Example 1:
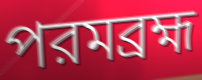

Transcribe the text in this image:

পরমব্রহ্ম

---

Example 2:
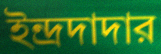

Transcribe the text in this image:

ইন্দ্রদাদার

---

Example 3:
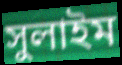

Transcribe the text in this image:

সুলাইম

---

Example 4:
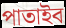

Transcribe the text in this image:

পাতাইব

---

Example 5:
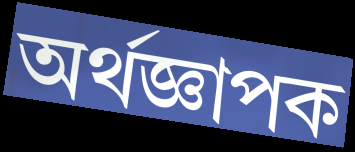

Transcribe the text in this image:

অর্থজ্ঞাপক